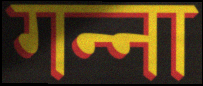
गन्‍ना